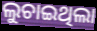
ଲୁଚାଇଥିଲା